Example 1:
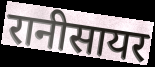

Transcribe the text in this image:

रानीसायर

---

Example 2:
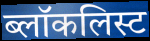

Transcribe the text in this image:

ब्लॉकलिस्ट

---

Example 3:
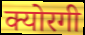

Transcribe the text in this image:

क्योरगी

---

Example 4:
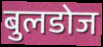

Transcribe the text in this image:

बुलडोज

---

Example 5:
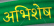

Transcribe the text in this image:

अभिशेष